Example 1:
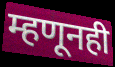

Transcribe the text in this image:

म्‍हणूनही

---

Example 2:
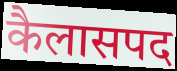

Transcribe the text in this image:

कैलासपद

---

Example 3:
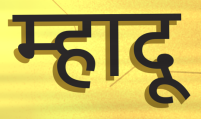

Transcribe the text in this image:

म्हादू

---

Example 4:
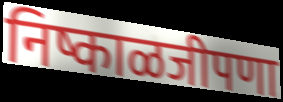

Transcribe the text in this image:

निष्काळजीपणा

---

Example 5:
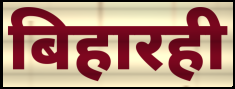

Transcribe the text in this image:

बिहारही